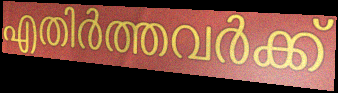
എതിർത്തവർക്ക്